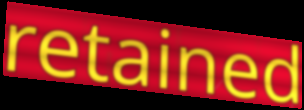
retained